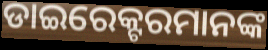
ଡାଇରେକ୍ଟରମାନଙ୍କ